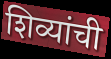
शिव्यांची